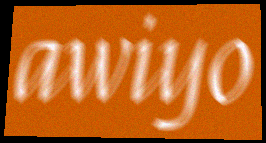
awiyo